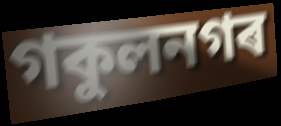
গকুলনগৰ